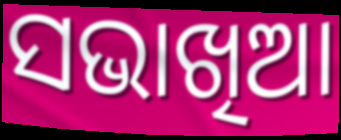
ସଭାଖିଆ